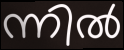
ന്നിൽ